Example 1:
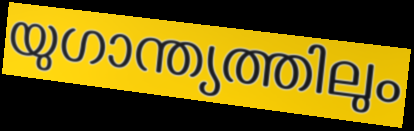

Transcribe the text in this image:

യുഗാന്ത്യത്തിലും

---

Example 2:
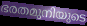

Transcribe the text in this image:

ഭരതമുനിയുടെ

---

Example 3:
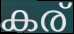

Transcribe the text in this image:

കര്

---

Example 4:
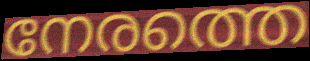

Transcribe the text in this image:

നേരത്തെ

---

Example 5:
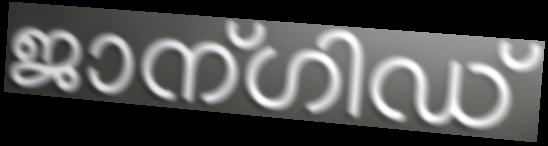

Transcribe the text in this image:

ജാന്ഗിഡ്